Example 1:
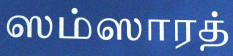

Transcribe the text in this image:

ஸம்ஸாரத்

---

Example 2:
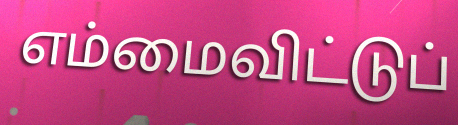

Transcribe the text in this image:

எம்மைவிட்டுப்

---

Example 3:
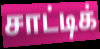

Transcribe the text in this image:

சாட்டிக்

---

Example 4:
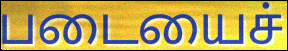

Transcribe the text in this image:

படையைச்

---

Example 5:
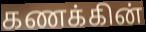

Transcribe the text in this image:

கணக்கின்